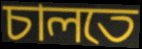
চালতে